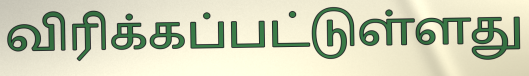
விரிக்கப்பட்டுள்ளது